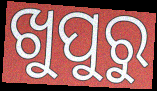
ଖୁପୁରୁ